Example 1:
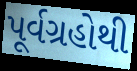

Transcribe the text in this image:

પૂર્વગ્રહોથી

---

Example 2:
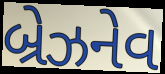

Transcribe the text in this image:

બ્રેઝનેવ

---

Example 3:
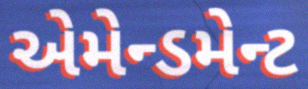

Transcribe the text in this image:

એમેન્ડમેન્ટ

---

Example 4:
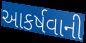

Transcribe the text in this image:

આકર્ષવાની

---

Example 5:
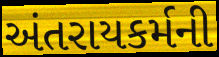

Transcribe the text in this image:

અંતરાયકર્મની